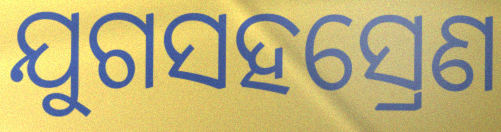
ଯୁଗସହସ୍ରେଣ